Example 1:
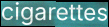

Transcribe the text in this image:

cigarettes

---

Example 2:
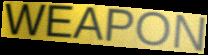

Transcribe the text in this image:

WEAPON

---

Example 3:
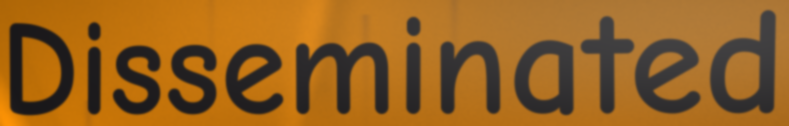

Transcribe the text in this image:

Disseminated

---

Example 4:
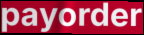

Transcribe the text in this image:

payorder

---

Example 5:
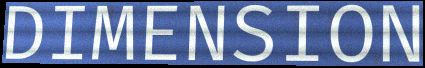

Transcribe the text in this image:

DIMENSION